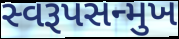
સ્વરૂપસન્મુખ